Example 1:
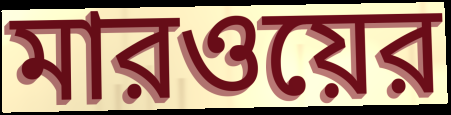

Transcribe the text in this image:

মারওয়ের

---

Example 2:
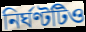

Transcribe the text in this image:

নির্ঘণ্টটিও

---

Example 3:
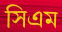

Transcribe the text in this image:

সিএম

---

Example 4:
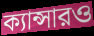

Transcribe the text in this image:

ক্যান্সারও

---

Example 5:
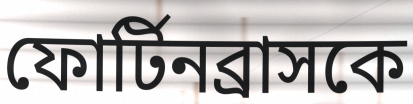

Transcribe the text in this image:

ফোর্টিনব্রাসকে